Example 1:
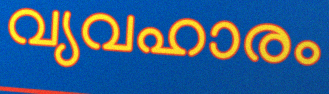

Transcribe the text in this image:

വ്യവഹാരം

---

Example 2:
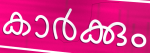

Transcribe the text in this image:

കാർക്കും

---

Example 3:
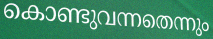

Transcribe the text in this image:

കൊണ്ടുവന്നതെന്നും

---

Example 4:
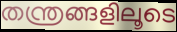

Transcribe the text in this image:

തന്ത്രങ്ങളിലൂടെ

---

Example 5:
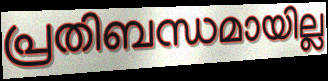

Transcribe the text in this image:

പ്രതിബന്ധമായില്ല